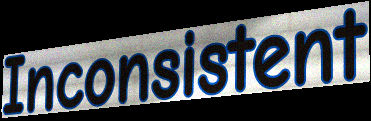
Inconsistent